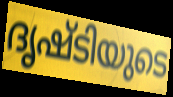
ദൃഷ്ടിയുടെ